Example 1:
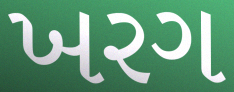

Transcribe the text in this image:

ખરગ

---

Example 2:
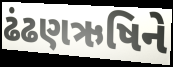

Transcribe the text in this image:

ઢંઢણઋષિને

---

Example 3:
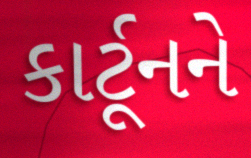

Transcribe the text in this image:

કાર્ટૂનને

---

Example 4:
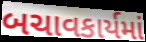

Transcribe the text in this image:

બચાવકાર્યમાં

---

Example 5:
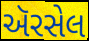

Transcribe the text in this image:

ઍરસેલ